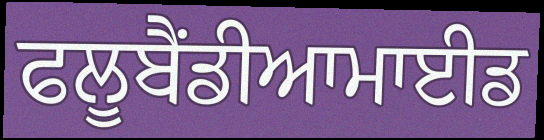
ਫਲੂਬੈਂਡੀਆਮਾਈਡ